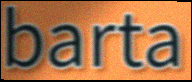
barta